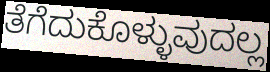
ತೆಗೆದುಕೊಳ್ಳುವುದಲ್ಲ